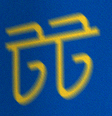
টট